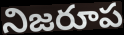
నిజరూప